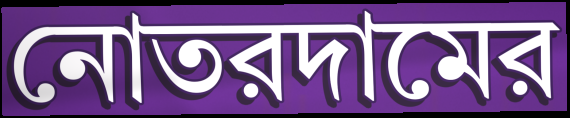
নোতরদামের